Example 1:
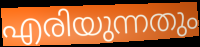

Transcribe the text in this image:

എരിയുന്നതും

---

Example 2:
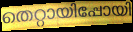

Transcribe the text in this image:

തെറ്റായിപ്പോയി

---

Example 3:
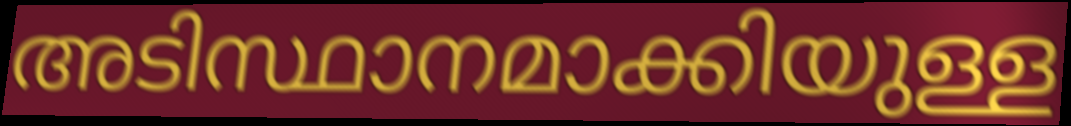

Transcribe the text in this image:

അടിസ്ഥാനമാക്കിയുള്ള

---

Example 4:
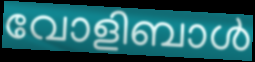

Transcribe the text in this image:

വോളിബാൾ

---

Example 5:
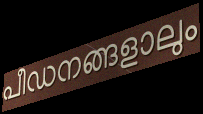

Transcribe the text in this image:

പീഡനങ്ങളാലും